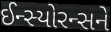
ઈન્સ્યોરન્સને